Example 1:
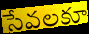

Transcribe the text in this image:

సేవలకూ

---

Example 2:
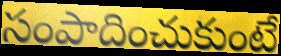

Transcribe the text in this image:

సంపాదించుకుంటే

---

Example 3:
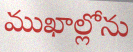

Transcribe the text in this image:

ముఖాల్లోను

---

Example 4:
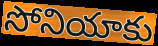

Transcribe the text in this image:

సోనియాకు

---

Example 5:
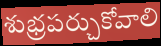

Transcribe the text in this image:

శుభ్రపర్చుకోవాలి